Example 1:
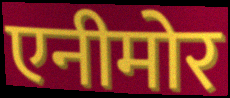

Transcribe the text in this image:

एनीमोर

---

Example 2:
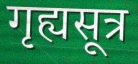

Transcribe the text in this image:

गृह्यसूत्र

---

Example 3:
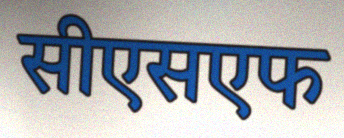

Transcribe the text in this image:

सीएसएफ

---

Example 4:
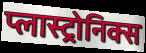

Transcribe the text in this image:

प्लास्ट्रोनिक्स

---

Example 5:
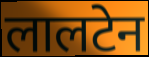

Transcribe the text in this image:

लालटेन